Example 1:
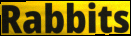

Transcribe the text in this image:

Rabbits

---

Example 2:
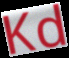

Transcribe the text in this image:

Kd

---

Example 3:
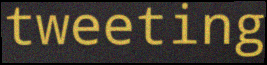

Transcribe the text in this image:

tweeting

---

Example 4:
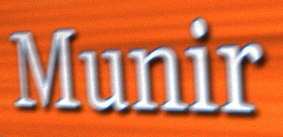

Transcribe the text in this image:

Munir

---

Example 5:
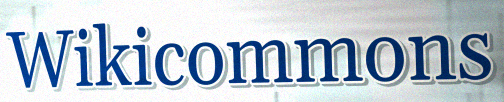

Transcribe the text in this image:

Wikicommons